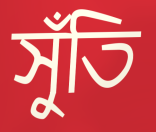
সুঁতি